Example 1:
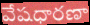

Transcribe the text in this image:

వేషధారణా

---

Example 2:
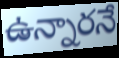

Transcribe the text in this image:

ఉన్నారనే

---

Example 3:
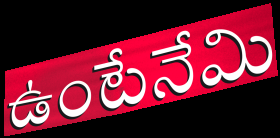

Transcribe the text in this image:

ఉంటేనేమి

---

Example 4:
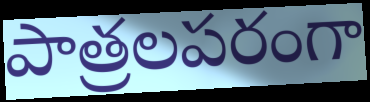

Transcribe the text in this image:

పాత్రలపరంగా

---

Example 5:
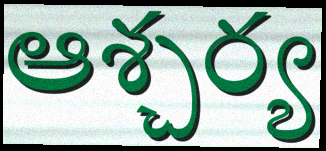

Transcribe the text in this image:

ఆశ్చర్య